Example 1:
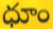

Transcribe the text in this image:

ధూం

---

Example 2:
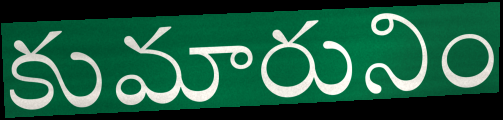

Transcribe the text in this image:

కుమారునిం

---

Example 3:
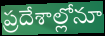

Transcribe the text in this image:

ప్రదేశాల్లోనూ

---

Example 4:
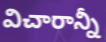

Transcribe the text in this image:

విచారాన్నీ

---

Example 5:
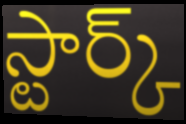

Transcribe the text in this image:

స్టార్క్